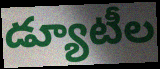
డ్యూటీల